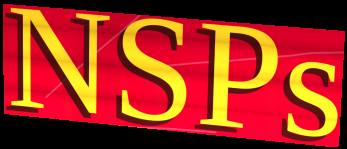
NSPs